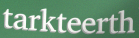
tarkteerth